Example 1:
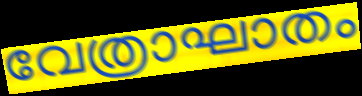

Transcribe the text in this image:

വേത്രാഘാതം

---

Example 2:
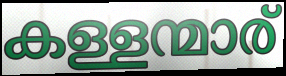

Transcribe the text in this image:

കള്ളന്മാര്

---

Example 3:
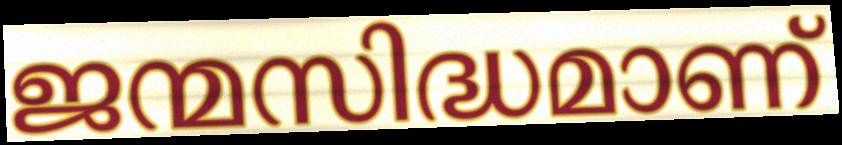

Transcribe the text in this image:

ജന്മസിദ്ധമാണ്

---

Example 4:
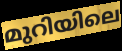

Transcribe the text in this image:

മുറിയിലെ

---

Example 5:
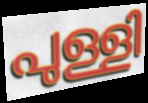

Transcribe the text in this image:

പുള്ളി